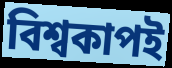
বিশ্বকাপই